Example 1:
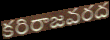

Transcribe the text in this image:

కరిరాజవరద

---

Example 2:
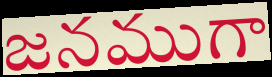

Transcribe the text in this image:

జనముగా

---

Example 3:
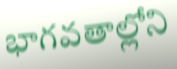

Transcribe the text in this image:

భాగవతాల్లోని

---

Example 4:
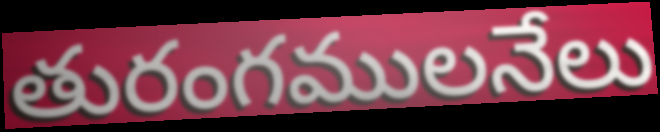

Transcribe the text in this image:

తురంగములనేలు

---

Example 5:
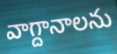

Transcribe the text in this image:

వాగ్దానాలను